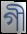
গী